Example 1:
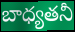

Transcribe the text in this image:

బాధ్యతనీ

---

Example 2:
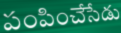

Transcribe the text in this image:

పంపించేసేడు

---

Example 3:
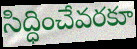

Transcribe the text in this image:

సిద్ధించేవరకూ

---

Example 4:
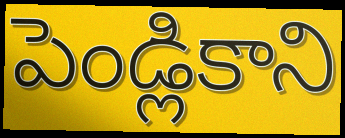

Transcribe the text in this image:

పెండ్లికాని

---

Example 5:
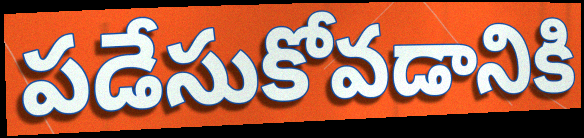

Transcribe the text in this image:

పడేసుకోవడానికి